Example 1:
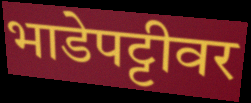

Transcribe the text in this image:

भाडेपट्टीवर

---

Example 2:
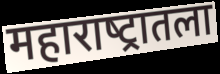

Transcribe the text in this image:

महाराष्ट्रातला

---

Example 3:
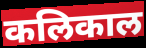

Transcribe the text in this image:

कलिकाल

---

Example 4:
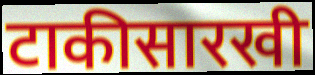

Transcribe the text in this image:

टाकीसारखी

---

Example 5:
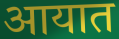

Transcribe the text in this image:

आयात